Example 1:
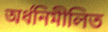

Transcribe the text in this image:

অর্ধনিমীলিত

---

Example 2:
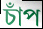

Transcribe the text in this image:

চাঁপ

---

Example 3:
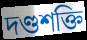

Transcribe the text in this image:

দণ্ডশক্তি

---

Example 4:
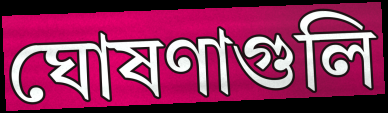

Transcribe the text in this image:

ঘোষণাগুলি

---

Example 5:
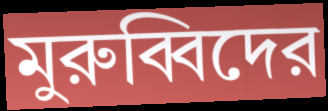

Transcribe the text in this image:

মুরুব্বিদের